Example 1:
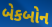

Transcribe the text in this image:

બેકબોન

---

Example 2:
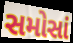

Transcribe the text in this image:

સમોસાં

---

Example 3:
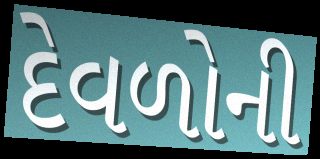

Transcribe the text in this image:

દેવળોની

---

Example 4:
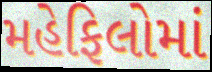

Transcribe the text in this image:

મહેફિલોમાં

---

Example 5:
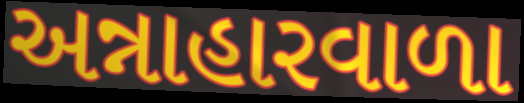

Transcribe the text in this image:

અન્નાહારવાળા